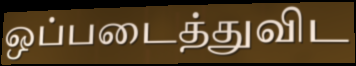
ஒப்படைத்துவிட